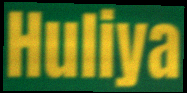
Huliya